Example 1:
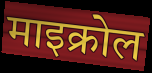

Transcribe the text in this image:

माइक्रोल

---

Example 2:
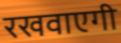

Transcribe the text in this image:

रखवाएगी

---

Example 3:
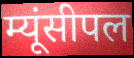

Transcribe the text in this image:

म्यूंसीपल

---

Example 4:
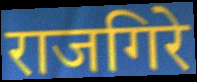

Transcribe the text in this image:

राजगिरे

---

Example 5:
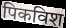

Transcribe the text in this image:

पिकविश